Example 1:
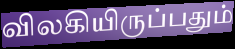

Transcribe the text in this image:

விலகியிருப்பதும்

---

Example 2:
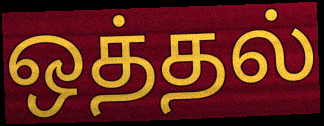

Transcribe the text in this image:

ஒத்தல்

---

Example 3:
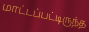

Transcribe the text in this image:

மாட்டப்பட்டிருந்த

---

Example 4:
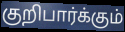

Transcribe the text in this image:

குறிபார்க்கும்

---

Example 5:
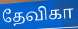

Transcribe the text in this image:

தேவிகா